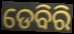
ଡେବିରି